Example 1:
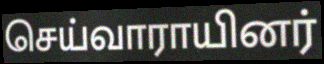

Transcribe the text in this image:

செய்வாராயினர்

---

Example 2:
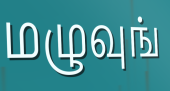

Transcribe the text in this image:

மழுவுங்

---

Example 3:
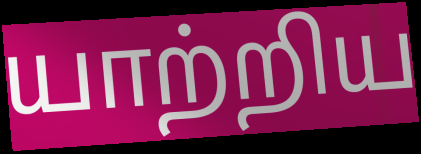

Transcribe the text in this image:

யாற்றிய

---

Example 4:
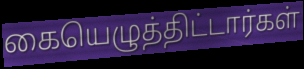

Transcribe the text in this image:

கையெழுத்திட்டார்கள்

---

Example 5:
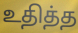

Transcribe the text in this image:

உதித்த